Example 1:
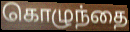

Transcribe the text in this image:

கொழுந்தை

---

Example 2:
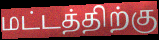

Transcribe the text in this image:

மட்டத்திற்கு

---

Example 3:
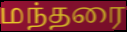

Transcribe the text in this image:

மந்தரை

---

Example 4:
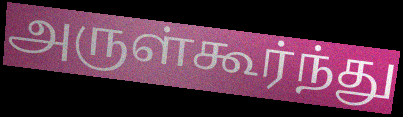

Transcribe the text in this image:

அருள்கூர்ந்து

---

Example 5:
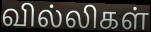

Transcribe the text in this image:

வில்லிகள்